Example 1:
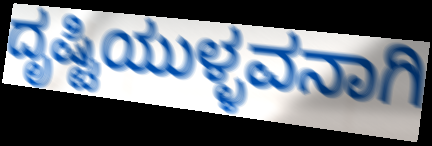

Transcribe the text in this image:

ದೃಷ್ಟಿಯುಳ್ಳವನಾಗಿ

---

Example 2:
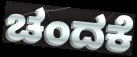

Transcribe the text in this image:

ಚಂದಕೆ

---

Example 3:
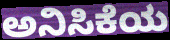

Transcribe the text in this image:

ಅನಿಸಿಕೆಯ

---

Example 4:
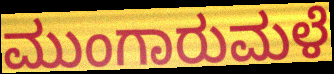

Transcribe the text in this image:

ಮುಂಗಾರುಮಳೆ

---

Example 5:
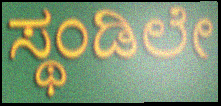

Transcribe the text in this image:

ಸ್ಥಂಡಿಲೇ